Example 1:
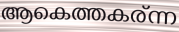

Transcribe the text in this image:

ആകെത്തകര്ന്ന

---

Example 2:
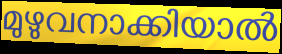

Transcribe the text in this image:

മുഴുവനാക്കിയാൽ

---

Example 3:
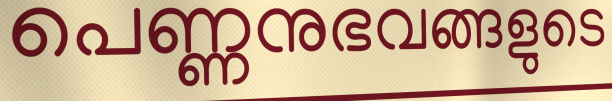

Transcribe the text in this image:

പെണ്ണനുഭവങ്ങളുടെ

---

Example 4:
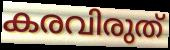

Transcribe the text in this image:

കരവിരുത്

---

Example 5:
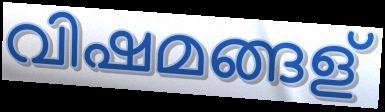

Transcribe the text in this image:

വിഷമങ്ങള്